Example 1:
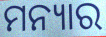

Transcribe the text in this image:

ମନ୍ୟାର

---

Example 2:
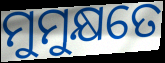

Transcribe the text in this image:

ମୁମୁକ୍ଷତେ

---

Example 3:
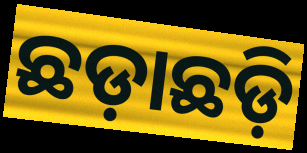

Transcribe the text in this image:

ଛଡ଼ାଛଡ଼ି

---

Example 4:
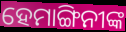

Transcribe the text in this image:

ହେମାଙ୍ଗିନୀଙ୍କ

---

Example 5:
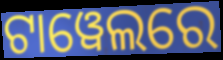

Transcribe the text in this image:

ଟାୱେଲରେ